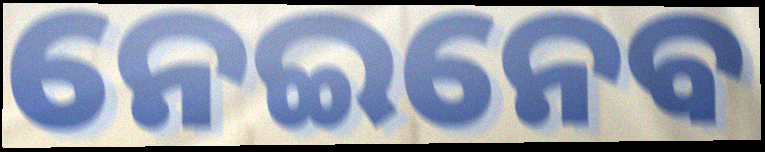
ନେଇନେବ